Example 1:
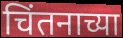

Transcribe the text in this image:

चिंतनाच्या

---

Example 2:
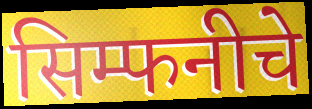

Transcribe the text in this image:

सिम्फनीचे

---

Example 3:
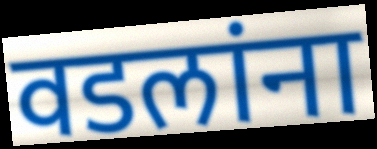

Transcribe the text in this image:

वडलांना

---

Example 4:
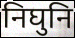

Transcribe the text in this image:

निघुनि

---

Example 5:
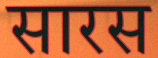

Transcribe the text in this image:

सारस